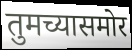
तुमच्यासमोर